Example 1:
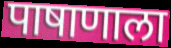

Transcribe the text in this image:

पाषाणाला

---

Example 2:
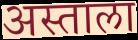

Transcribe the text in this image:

अस्ताला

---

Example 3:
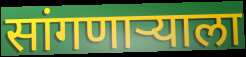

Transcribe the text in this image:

सांगणार्‍याला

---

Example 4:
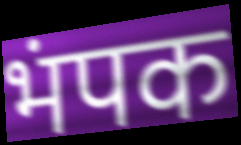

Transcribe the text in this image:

भंपक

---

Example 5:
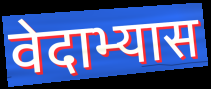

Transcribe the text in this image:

वेदाभ्यास